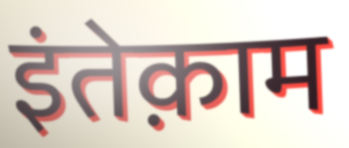
इंतेक़ाम